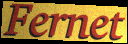
Fernet